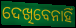
ଦେଖିବେନାହିଁ